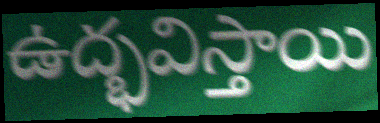
ఉద్భవిస్తాయి